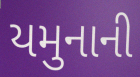
યમુનાની